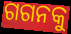
ଗଗନକୁ